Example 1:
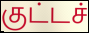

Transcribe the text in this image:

குட்டச்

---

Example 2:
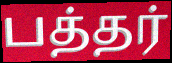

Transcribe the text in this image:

பத்தர்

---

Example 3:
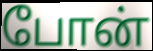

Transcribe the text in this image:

போன்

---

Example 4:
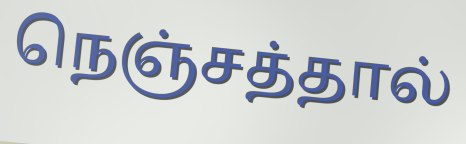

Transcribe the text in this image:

நெஞ்சத்தால்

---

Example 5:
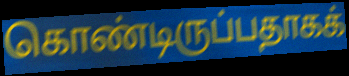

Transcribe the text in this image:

கொண்டிருப்பதாகக்